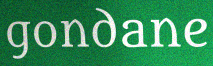
gondane